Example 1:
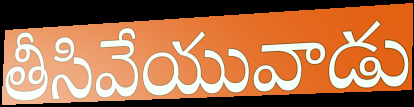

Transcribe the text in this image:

తీసివేయువాడు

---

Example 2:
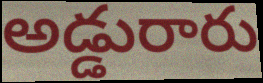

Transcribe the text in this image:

అడ్డురారు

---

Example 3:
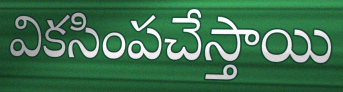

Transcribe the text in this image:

వికసింపచేస్తాయి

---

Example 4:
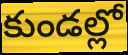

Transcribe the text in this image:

కుండల్లో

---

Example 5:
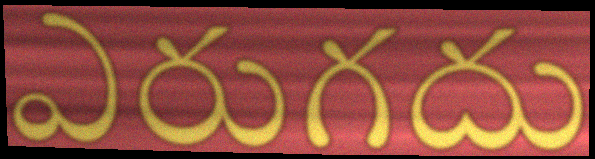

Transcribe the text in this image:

ఎరుగదు